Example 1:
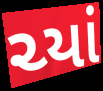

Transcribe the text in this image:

ચ્યાં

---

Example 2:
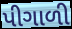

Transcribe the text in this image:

પીગાળી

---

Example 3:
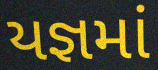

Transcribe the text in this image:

યજ્ઞમાં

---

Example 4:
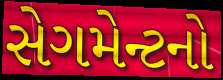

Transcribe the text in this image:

સેગમેન્ટનો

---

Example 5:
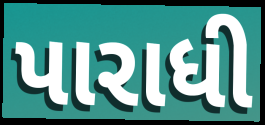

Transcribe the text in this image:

પારાધી